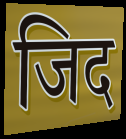
जिद